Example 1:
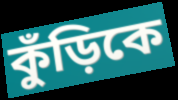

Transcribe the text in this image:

কুঁড়িকে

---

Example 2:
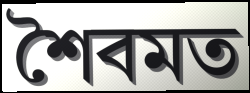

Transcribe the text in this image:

শৈবমত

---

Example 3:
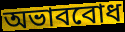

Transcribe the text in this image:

অভাববোধ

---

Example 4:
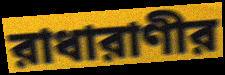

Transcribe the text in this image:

রাধারাণীর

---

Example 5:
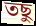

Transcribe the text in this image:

তছু